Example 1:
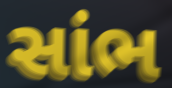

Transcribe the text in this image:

સાંભ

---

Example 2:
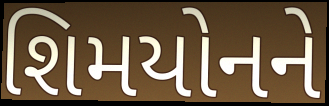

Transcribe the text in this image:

શિમયોનને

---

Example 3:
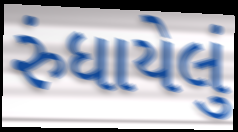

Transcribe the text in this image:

રુંધાયેલું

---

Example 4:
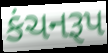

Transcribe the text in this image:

કંચનરૂપ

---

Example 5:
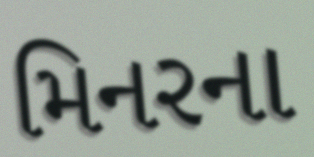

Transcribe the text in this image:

મિનરના